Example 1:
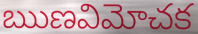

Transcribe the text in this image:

ఋణవిమోచక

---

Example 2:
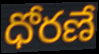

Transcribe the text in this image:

ధోరణే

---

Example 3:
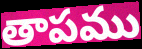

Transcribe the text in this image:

తాపము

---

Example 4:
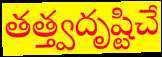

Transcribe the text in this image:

తత్త్వదృష్టిచే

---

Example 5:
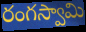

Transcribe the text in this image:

రంగస్వామి